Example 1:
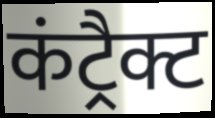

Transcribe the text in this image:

कंट्रैक्ट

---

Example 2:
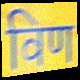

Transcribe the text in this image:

विण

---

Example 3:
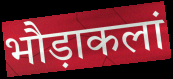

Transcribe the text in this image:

भौड़ाकलां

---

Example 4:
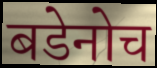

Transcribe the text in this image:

बडेनोच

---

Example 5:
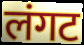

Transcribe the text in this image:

लंगट